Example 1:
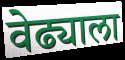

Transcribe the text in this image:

वेढ्याला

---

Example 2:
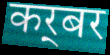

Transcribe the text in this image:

कर्बर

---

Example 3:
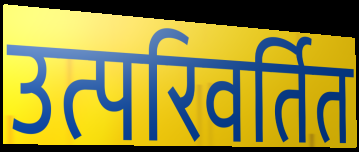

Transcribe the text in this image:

उत्परिवर्तित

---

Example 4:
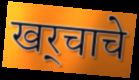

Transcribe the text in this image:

खर्चाचे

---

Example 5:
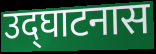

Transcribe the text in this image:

उद्घाटनास